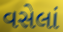
વસેલાં